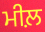
ਮੀਲ਼